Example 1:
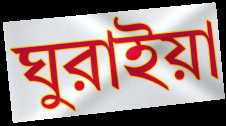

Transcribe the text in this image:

ঘুরাইয়া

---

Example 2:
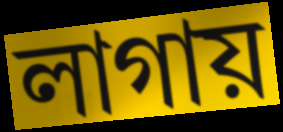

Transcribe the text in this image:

লাগায়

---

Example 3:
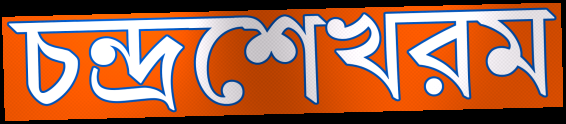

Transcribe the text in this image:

চন্দ্রশেখরম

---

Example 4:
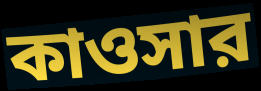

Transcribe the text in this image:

কাওসার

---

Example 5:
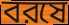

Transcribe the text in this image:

বরষে